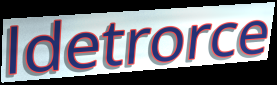
Idetrorce